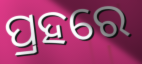
ପ୍ରହରେ